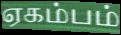
ஏகம்பம்